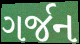
ગર્જન